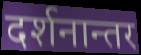
दर्शनान्तर